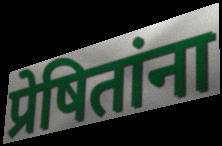
प्रेषितांना